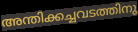
അന്തിക്കച്ചവടത്തിനു